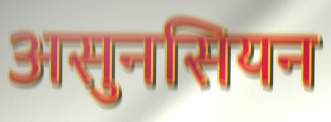
असुनसियन